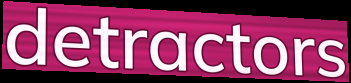
detractors